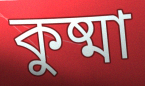
কুষ্মা